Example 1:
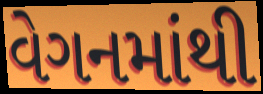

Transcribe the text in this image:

વેગનમાંથી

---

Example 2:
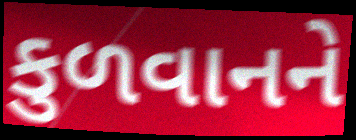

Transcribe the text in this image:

કુળવાનને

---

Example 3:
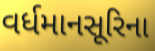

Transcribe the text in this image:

વર્ધમાનસૂરિના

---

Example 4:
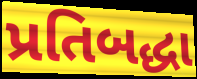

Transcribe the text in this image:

પ્રતિબદ્ધા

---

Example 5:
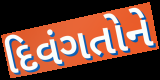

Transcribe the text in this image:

દિવંગતોને